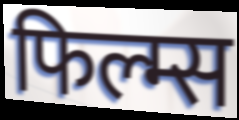
फिल्म्स